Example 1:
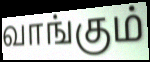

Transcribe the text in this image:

வாங்கும்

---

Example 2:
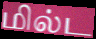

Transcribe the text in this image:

மில்ட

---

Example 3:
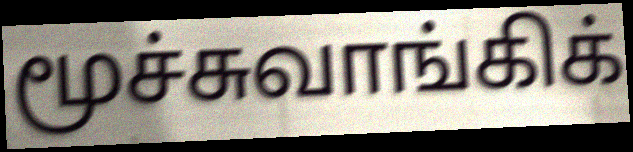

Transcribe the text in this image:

மூச்சுவாங்கிக்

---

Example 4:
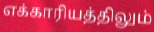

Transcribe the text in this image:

எக்காரியத்திலும்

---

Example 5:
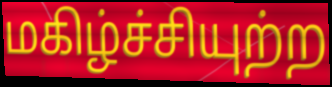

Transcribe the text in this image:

மகிழ்ச்சியுற்ற